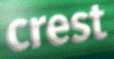
crest